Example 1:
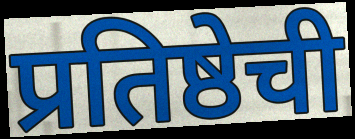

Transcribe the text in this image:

प्रतिष्ठेची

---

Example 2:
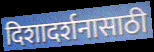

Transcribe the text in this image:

दिशादर्शनासाठी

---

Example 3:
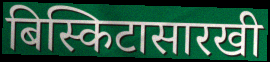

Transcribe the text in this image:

बिस्किटासारखी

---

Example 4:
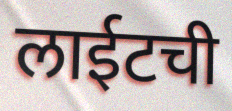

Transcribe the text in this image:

लाईटची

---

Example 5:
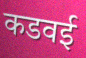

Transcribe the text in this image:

कडवई